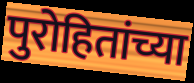
पुरोहितांच्या